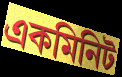
একমিনিট